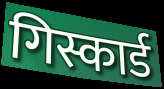
गिस्कार्ड